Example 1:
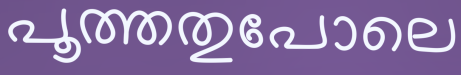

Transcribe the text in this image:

പൂത്തതുപോലെ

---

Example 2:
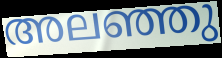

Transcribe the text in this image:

അലഞ്ഞു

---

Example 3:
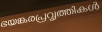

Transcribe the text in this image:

ഭയങ്കരപ്രവൃത്തികൾ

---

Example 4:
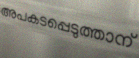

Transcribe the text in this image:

അപകടപ്പെടുത്താന്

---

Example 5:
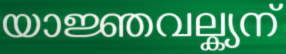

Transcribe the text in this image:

യാജ്ഞവല്ക്യന്